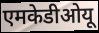
एमकेडीओयू